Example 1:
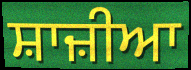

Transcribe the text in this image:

ਸ਼ਾਜ਼ੀਆ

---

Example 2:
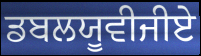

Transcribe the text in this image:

ਡਬਲਯੂਵੀਜੀਏ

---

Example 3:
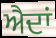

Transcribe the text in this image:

ਐਦਾਂ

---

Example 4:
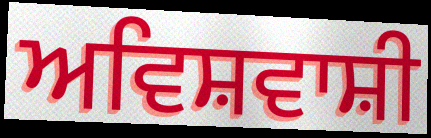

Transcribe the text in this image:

ਅਵਿਸ਼ਵਾਸ਼ੀ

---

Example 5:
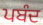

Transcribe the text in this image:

ਪਬੰਦ